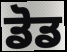
ਡੋਡ